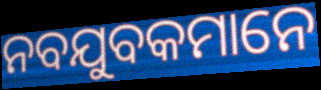
ନବଯୁବକମାନେ